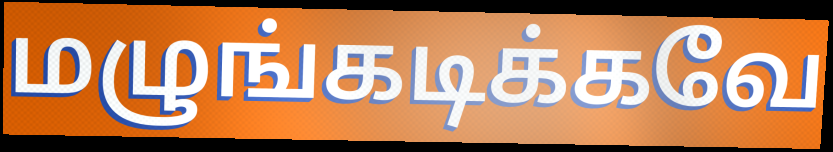
மழுங்கடிக்கவே